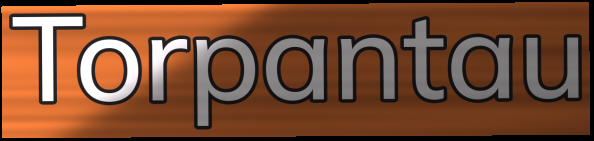
Torpantau